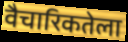
वैचारिकतेला